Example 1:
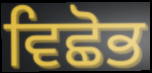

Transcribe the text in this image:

ਵਿਛੋਭ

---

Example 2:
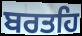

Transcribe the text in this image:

ਬਰਤਹਿ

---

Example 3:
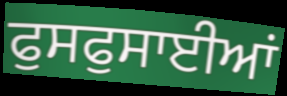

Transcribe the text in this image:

ਫੁਸਫੁਸਾਈਆਂ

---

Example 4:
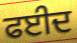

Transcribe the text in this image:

ਫਈਦ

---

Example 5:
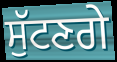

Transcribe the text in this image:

ਸੁੱਟਣਗੇ